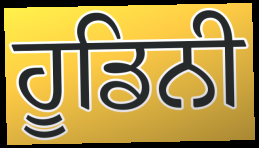
ਹੂਡਿਨੀ